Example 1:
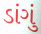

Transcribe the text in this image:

ડાંગું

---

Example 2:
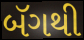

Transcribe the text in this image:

બૅગથી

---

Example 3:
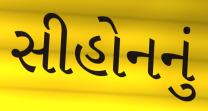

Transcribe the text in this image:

સીહોનનું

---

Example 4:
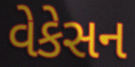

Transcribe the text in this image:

વેકેસન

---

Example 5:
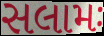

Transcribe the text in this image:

સલામઃ